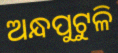
ଅନ୍ଧପୁଟୁଳି